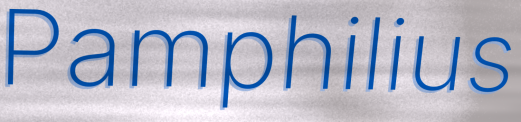
Pamphilius